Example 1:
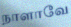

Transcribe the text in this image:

நாளாவே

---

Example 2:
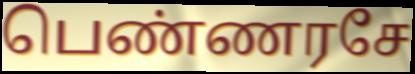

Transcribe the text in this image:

பெண்ணரசே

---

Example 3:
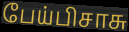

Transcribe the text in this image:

பேய்பிசாசு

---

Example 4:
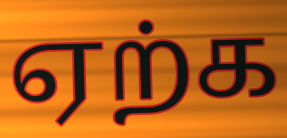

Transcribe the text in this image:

ஏற்க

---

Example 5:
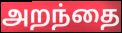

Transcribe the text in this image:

அறந்தை